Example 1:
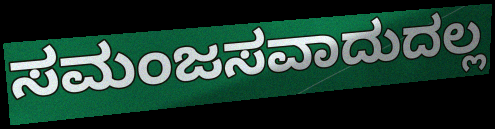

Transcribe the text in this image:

ಸಮಂಜಸವಾದುದಲ್ಲ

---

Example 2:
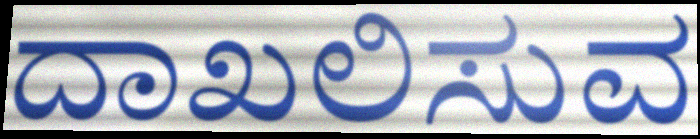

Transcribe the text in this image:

ದಾಖಲಿಸುವ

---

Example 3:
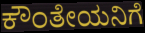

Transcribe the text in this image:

ಕೌಂತೇಯನಿಗೆ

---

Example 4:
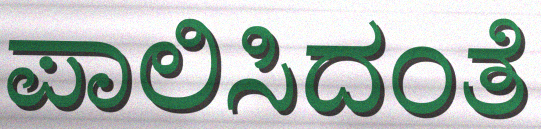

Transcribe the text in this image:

ಪಾಲಿಸಿದಂತೆ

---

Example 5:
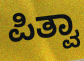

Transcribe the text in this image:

ಪಿತ್ವಾ